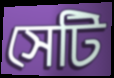
সেটি